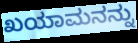
ಖಯಾಮನನ್ನು